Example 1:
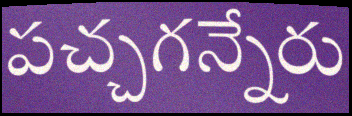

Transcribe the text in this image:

పచ్చగన్నేరు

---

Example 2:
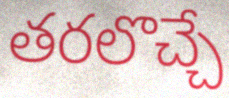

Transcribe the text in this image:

తరలొచ్చే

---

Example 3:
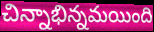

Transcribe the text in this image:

చిన్నాభిన్నమయింది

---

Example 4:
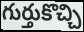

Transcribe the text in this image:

గుర్తుకొచ్చి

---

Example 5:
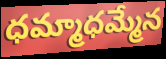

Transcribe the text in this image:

ధమ్మాధమ్మేన